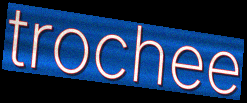
trochee